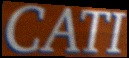
CATI